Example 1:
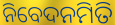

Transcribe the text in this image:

ନିବେଦନମିତି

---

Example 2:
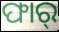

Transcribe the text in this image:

ଫାର୍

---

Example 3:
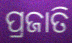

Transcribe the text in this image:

ପ୍ରଜାତି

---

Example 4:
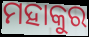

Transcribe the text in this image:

ମହାକୁର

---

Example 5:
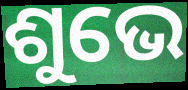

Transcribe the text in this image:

ଶୁଭେ